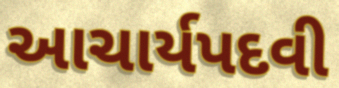
આચાર્યપદવી